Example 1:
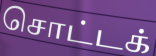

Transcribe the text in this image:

சொட்டக்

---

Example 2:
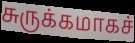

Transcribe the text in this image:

சுருக்கமாகச்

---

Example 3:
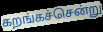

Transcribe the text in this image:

கறங்கச்சென்று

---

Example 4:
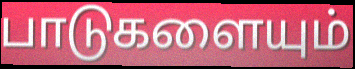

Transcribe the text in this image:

பாடுகளையும்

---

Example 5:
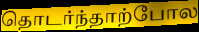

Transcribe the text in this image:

தொடர்ந்தாற்போல